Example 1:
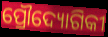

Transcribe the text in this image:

ପ୍ରୌଦ୍ୟୋଗିକୀ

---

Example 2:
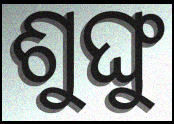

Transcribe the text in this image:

ଶୁଙ୍ଘୁ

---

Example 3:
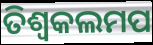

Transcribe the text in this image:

ତିଶ୍ୱକଲମପ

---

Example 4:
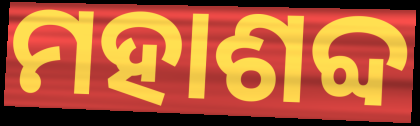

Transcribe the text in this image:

ମହାଶବ୍ଦ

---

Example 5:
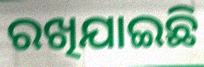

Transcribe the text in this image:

ରଖିଯାଇଛି